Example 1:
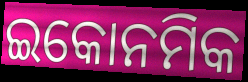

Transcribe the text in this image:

ଇକୋନମିକ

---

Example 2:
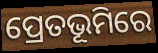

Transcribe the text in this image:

ପ୍ରେତଭୂମିରେ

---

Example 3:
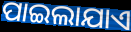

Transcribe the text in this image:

ପାଇଲାଯାଏ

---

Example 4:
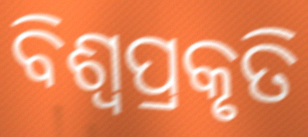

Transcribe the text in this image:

ବିଶ୍ଵପ୍ରକୃତି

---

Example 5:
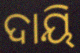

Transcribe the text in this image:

ଦାୟି